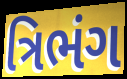
ત્રિભંગ